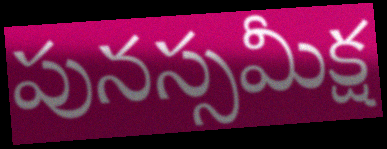
పునస్సమీక్ష